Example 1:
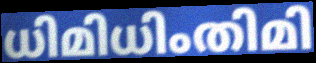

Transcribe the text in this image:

ധിമിധിംതിമി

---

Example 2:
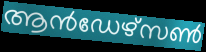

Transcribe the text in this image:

ആൻഡേഴ്സൺ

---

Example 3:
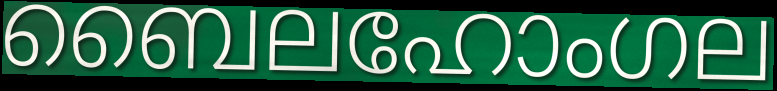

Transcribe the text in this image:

ബൈലഹോംഗല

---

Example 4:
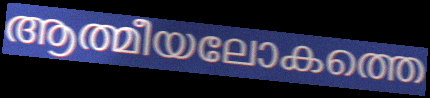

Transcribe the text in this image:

ആത്മീയലോകത്തെ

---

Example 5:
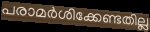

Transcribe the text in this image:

പരാമർശിക്കേണ്ടതില്ല